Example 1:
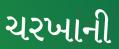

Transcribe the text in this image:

ચરખાની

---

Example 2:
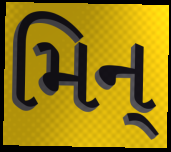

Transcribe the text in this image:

મિન્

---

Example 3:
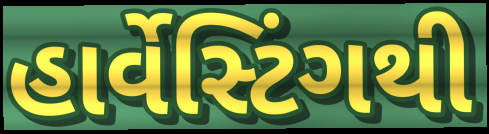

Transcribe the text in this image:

હાર્વેસ્ટિંગથી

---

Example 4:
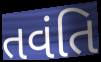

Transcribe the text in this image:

તવંતિ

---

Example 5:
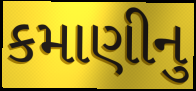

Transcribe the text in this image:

કમાણીનુ